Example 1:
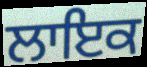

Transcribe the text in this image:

ਲਾਇਕ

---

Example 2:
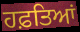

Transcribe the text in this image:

ਹਫ਼ਤਿਆਂ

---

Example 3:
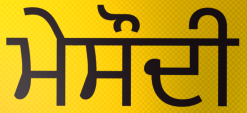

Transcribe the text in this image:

ਮੇਸੌਦੀ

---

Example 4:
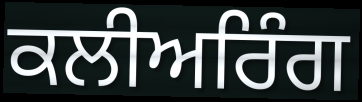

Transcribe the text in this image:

ਕਲੀਅਰਿੰਗ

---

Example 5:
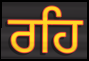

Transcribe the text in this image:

ਰਹਿ